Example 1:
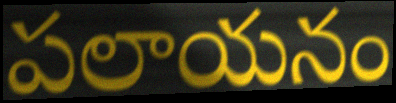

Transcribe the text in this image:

పలాయనం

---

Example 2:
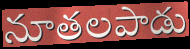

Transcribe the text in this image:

నూతలపాడు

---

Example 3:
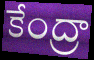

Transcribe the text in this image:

కేంద్రా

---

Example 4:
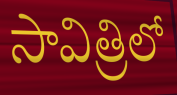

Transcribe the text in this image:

సావిత్రిలో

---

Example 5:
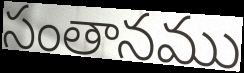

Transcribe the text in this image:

సంతానము